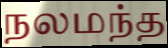
நலமந்த